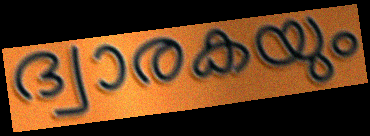
ദ്വാരകയും